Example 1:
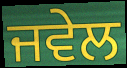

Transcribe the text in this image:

ਜਵੇਲ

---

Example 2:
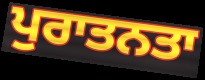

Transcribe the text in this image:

ਪੁਰਾਤਨਤਾ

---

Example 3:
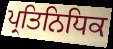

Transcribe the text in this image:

ਪ੍ਰਤਿਨਿਧਿਕ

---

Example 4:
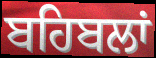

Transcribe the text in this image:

ਬਹਿਬਲਾਂ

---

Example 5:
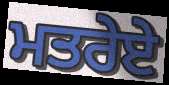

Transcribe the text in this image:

ਮਤਰੇਏ